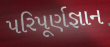
પરિપૂર્ણજ્ઞાન